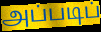
அப்படிப்